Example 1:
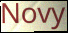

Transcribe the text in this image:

Novy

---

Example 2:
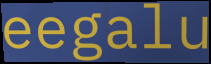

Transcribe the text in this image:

eegalu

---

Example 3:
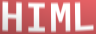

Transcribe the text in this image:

HIML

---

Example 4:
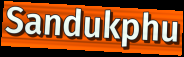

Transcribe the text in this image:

Sandukphu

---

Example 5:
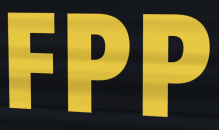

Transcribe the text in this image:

FPP